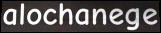
alochanege